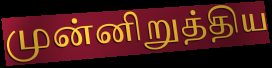
முன்னிறுத்திய